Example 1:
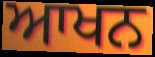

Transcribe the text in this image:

ਆਖਨ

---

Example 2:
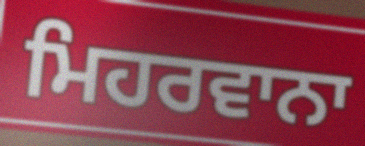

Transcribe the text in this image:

ਮਿਹਰਵਾਨਾ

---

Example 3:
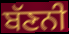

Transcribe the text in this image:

ਬੱਣਨੀ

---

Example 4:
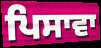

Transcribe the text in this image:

ਪਿਸਾਵਾ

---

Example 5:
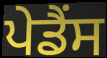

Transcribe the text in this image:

ਪੇਡੈਂਸ